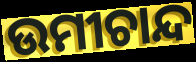
ଉମୀଚାନ୍ଦ